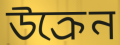
উক্রেন